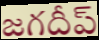
జగదీప్